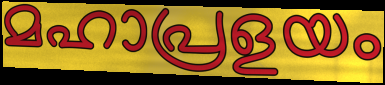
മഹാപ്രളയം